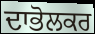
ਦਾਭੋਲਕਰ